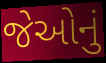
જેઓનું